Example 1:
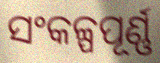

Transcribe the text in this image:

ସଂକଳ୍ପପୂର୍ଣ୍ଣ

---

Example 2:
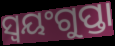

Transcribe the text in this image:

ସ୍ୱୟଂଗୁପ୍ତା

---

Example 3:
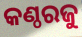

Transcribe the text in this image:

କଣ୍ଠରଜୁ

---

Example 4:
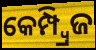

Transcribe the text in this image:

କେମ୍ପ୍ୱ୍ରିଜ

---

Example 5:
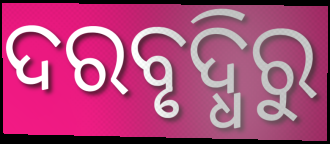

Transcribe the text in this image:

ଦରବୃଦ୍ଧିରୁ